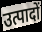
उत्पादों